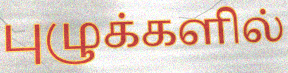
புழுக்களில்